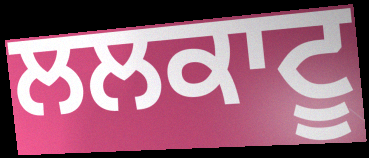
ਲਲਕਾਟੂ